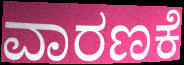
ವಾರಣಕೆ